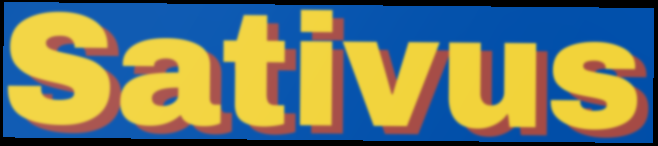
Sativus